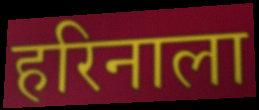
हरिनाला